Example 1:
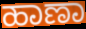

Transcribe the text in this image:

ಹಾಣಾ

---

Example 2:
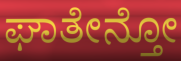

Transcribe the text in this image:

ಘಾತೇನ್ತೋ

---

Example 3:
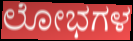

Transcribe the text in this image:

ಲೋಭಗಳ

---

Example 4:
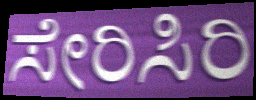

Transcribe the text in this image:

ಸೇರಿಸಿರಿ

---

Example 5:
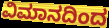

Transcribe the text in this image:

ವಿಮಾನದಿಂದ